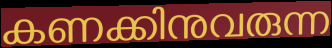
കണക്കിനുവരുന്ന